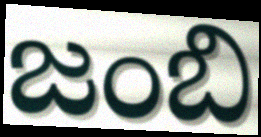
జంబి